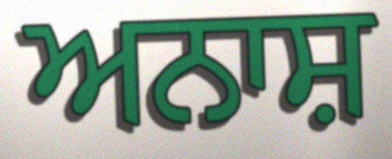
ਅਨਾਸ਼